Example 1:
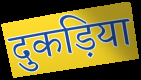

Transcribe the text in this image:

दुकड़िया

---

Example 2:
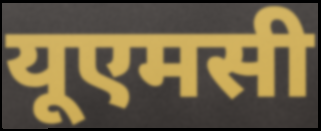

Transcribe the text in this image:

यूएमसी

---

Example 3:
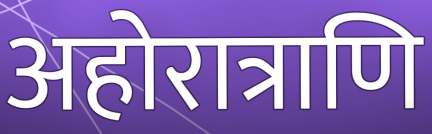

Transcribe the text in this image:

अहोरात्राणि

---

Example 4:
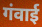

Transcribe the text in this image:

गंवाई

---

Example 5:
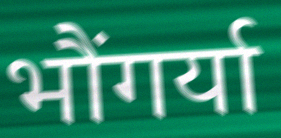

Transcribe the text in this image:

भौंगर्या